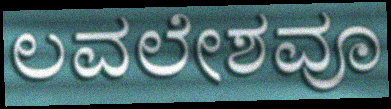
ಲವಲೇಶವೂ